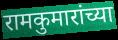
रामकुमारांच्या